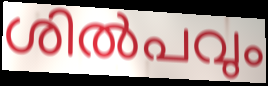
ശിൽപവും